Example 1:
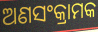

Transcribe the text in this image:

ଅଣସଂକ୍ରାମକ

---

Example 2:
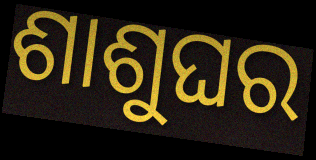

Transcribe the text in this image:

ଶାଶୁଘର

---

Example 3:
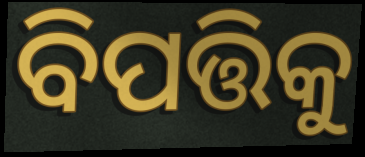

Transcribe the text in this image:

ବିପତ୍ତିକୁ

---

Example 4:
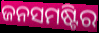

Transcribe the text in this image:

ଜନସମଷ୍ଟିର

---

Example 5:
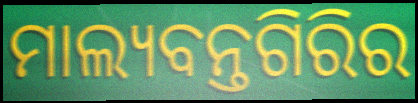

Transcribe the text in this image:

ମାଲ୍ୟବନ୍ତଗିରିର